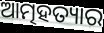
ଆତ୍ମହତ୍ୟାର